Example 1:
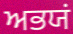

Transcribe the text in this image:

ਅਭਯਂ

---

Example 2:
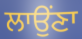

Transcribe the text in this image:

ਲਾਉਂਣਾ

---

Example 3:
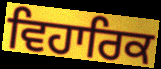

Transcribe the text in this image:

ਵਿਹਾਰਿਕ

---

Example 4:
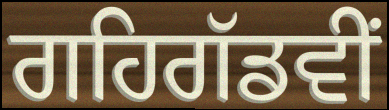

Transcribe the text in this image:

ਗਹਿਗੱਡਵੀਂ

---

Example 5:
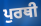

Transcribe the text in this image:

ਪੁਰਥੀ